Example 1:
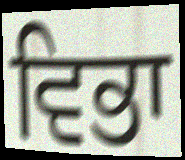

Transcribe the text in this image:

ਵਿਭਾ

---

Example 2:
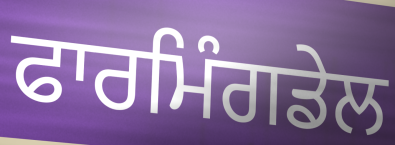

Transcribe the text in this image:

ਫਾਰਮਿੰਗਡੇਲ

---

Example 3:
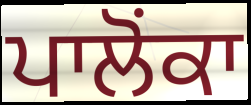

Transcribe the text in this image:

ਪਾਲੋਂਕਾ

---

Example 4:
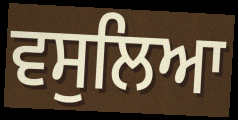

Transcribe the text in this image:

ਵਸੁਲਿਆ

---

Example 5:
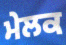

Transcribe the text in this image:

ਮੇਲਕ